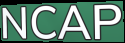
NCAP